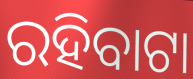
ରହିବାଟା